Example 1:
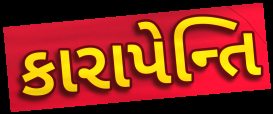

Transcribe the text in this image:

કારાપેન્તિ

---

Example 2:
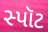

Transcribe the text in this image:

સ્પૉટ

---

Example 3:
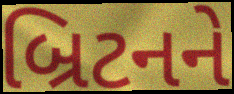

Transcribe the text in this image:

બ્રિટનને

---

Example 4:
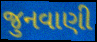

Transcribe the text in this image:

જુનવાણી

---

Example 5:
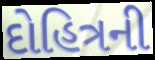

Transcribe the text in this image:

દોહિત્રની